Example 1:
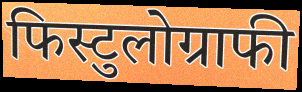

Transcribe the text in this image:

फिस्टुलोग्राफी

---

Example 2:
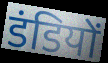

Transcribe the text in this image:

डंडियों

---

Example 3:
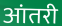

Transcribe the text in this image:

आंतरी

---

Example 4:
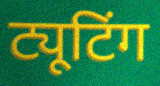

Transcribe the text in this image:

ट्यूटिंग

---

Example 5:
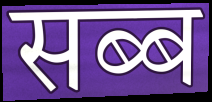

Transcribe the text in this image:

सब्ब